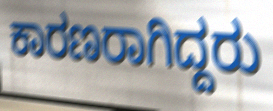
ಕಾರಣರಾಗಿದ್ದರು